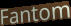
Fantom